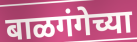
बाळगंगेच्या